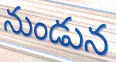
నుండున